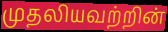
முதலியவற்றின்